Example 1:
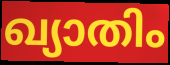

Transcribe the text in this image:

ഖ്യാതിം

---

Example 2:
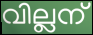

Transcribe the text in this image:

വില്ലന്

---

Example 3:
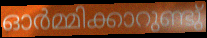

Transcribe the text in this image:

ഓർമ്മിക്കാറുണ്ടു്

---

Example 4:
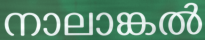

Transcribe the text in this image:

നാലാങ്കൽ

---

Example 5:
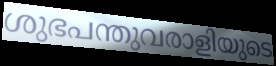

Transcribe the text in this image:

ശുഭപന്തുവരാളിയുടെ